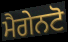
ਮੈਗੇਨਟੋ